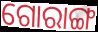
ଗୋରାଙ୍ଗ